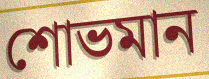
শোভমান